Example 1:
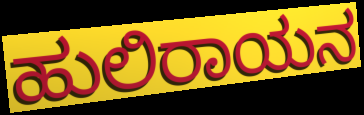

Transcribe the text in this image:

ಹುಲಿರಾಯನ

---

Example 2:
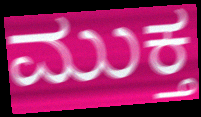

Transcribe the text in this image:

ಮುಕ್ತ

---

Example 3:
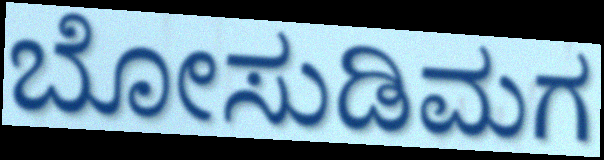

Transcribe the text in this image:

ಬೋಸುಡಿಮಗ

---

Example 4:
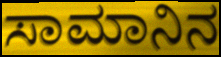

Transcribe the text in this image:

ಸಾಮಾನಿನ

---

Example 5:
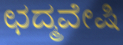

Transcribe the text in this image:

ಛದ್ಮವೇಷಿ